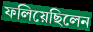
ফলিয়েছিলেন